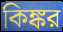
কিঙ্কর